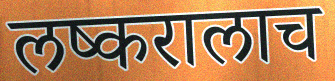
लष्करालाच